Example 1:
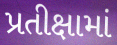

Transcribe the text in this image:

પ્રતીક્ષામાં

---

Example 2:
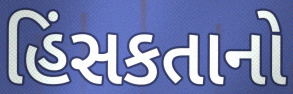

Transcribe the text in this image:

હિંસકતાનો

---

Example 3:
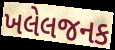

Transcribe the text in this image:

ખલેલજનક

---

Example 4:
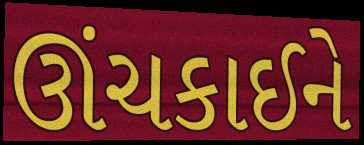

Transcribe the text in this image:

ઊંચકાઈને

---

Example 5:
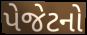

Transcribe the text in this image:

પેજેટનો